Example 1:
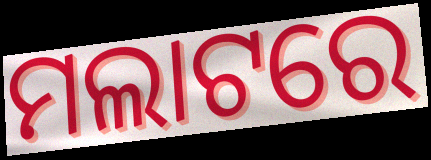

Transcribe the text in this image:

ମଲାଟରେ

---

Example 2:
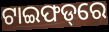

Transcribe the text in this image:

ଟାଇଫଡ୍‌ରେ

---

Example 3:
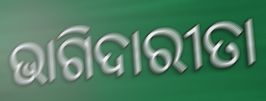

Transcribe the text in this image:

ଭାଗିଦାରୀତା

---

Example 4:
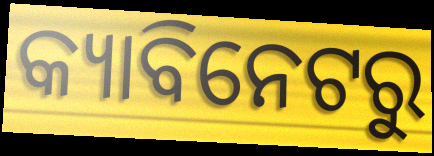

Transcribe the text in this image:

କ୍ୟାବିନେଟରୁ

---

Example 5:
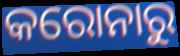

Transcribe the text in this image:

କରୋନାରୁ